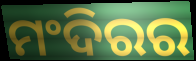
ମଂଦିରର